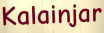
Kalainjar